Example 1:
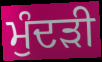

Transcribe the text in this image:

ਮੁੰਦੜੀ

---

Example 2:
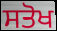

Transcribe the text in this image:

ਸਤੋਖ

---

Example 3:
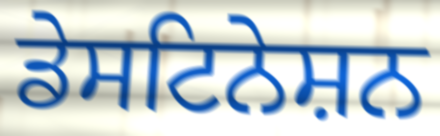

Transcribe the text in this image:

ਡੇਸਟਿਨੇਸ਼ਨ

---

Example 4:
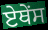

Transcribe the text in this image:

ਏਥੇੰਸ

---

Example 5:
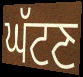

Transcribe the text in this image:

ਘੱਟਣ